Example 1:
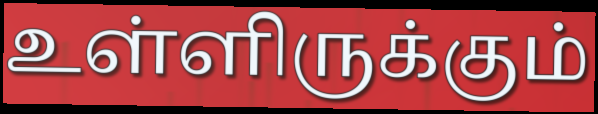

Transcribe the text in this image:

உள்ளிருக்கும்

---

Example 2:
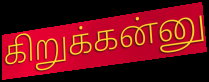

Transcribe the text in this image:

கிறுக்கன்னு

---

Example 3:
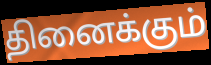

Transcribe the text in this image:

தினைக்கும்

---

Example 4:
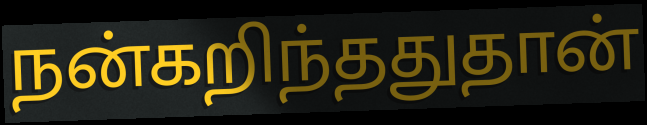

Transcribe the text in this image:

நன்கறிந்ததுதான்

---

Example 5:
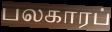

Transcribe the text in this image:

பலகாரப்